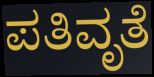
ಪತಿವೃತೆ